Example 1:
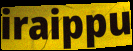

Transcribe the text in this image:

iraippu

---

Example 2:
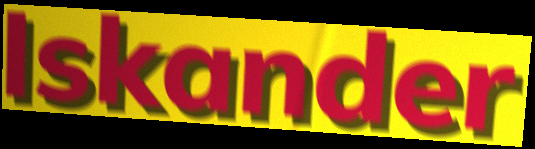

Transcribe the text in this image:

Iskander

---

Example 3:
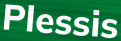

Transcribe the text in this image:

Plessis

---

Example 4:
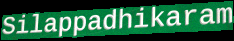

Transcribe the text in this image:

Silappadhikaram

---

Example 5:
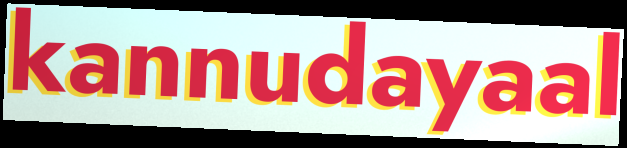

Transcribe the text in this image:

kannudayaal